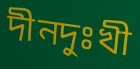
দীনদুঃখী